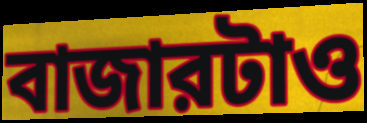
বাজারটাও